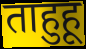
ताहुहू